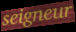
seigneur